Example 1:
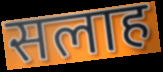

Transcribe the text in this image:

सलाह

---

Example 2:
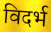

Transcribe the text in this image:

विदर्भ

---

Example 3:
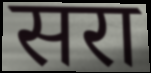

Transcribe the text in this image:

सरा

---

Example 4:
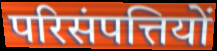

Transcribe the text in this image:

परिसंपत्तियों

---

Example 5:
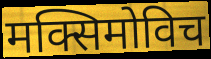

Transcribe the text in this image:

मक्सिमोविच